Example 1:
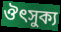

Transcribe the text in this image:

ঔৎসুক্য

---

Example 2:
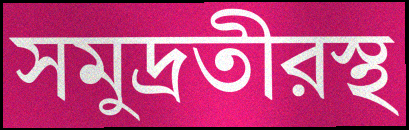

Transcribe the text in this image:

সমুদ্রতীরস্থ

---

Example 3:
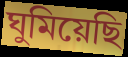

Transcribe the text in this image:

ঘুমিয়েছি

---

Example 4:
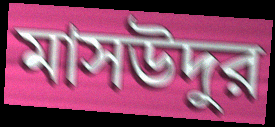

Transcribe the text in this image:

মাসউদুর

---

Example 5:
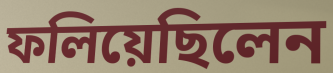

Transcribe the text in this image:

ফলিয়েছিলেন